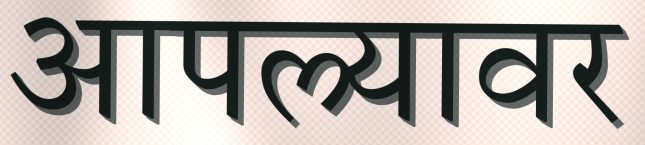
आपल्यावर